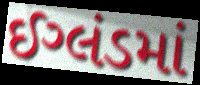
ઈગ્લંડમાં